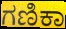
ಗಣಿಕಾ